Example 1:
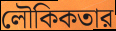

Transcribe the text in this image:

লৌকিকতার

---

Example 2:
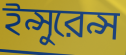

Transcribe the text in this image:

ইন্সুরেন্স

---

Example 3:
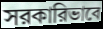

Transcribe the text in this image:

সরকারিভাবে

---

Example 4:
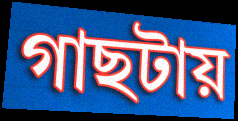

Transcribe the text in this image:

গাছটায়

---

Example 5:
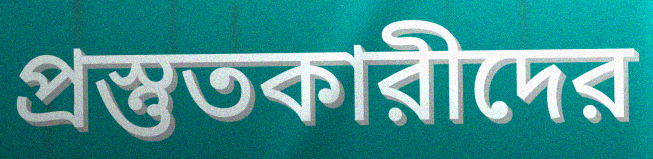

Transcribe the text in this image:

প্রস্তুতকারীদের